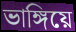
ভাঙ্গিয়ে